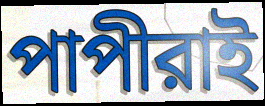
পাপীরাই